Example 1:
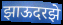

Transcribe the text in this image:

झाऊदरझे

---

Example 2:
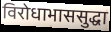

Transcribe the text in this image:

विरोधाभाससुद्धा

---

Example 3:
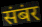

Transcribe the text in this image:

संबंर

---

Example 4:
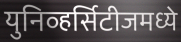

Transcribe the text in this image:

युनिव्हर्सिटीजमध्ये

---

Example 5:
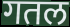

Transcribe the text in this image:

गतल